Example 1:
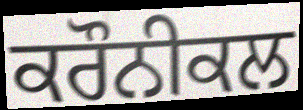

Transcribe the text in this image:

ਕਰੌਨੀਕਲ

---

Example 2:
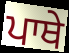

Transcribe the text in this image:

ਪਾਥੇ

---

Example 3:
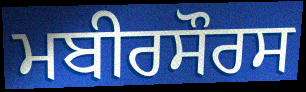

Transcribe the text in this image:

ਮਬੀਰਸੌਰਸ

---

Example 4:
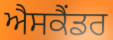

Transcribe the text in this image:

ਐਸਕੈਂਡਰ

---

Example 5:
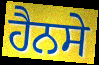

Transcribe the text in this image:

ਹੈਨਸੇ